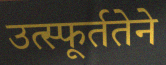
उत्स्फूर्ततेने